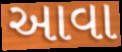
આવા